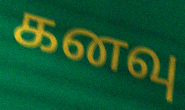
கனவு